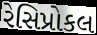
રેસિપ્રોકલ